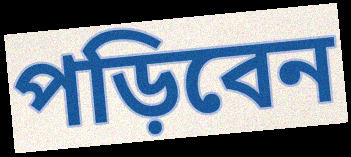
পড়িবেন